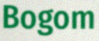
Bogom